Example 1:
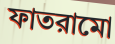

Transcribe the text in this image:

ফাতরামো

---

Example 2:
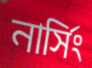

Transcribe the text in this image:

নার্সিং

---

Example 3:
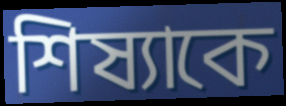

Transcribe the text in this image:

শিষ্যাকে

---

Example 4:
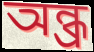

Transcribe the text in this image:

অন্ধ্র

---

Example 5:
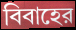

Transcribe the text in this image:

বিবাহের